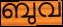
ബുവ